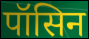
पॉसिन